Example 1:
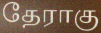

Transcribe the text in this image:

தேராகு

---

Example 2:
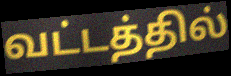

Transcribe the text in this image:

வட்டத்தில்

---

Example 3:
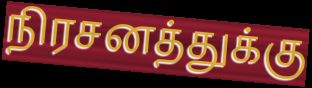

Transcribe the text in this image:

நிரசனத்துக்கு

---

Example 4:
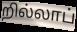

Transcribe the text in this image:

றில்லாப்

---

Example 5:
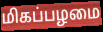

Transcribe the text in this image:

மிகப்பழமை